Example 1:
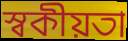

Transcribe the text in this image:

স্বকীয়তা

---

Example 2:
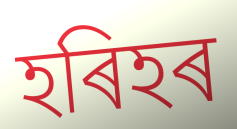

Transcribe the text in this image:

হৰিহৰ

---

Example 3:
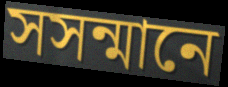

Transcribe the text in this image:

সসন্মানে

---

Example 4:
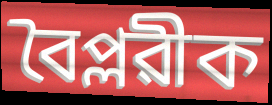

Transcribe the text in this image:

বৈপ্লৱীক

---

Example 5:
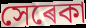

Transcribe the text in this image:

সেৰেকা